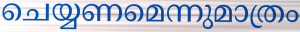
ചെയ്യണമെന്നുമാത്രം